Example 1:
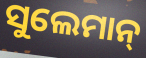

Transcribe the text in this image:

ସୁଲେମାନ୍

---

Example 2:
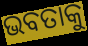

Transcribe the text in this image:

ଭବତାକୁ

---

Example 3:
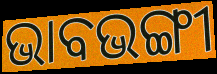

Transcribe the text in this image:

ଭାବଭଙ୍ଗୀ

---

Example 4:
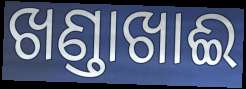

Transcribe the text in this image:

ଖଣ୍ଡାଖାଈ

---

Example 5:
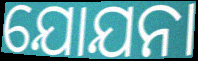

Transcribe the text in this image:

ଯୋଯନା